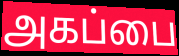
அகப்பை